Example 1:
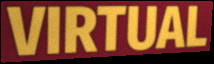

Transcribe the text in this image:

VIRTUAL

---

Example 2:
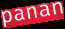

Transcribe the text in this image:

panan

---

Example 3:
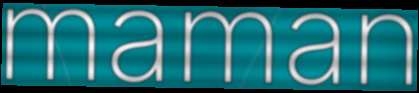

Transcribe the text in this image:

maman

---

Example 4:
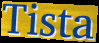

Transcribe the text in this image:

Tista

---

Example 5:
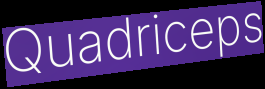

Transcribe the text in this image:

Quadriceps